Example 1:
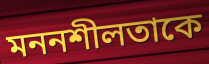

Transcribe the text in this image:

মননশীলতাকে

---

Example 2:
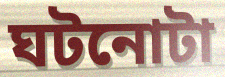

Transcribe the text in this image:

ঘটনোটা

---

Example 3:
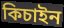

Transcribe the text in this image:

কিচাইন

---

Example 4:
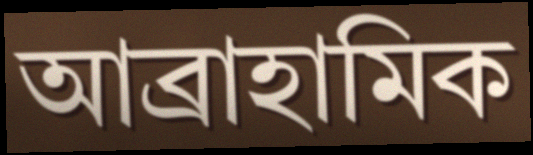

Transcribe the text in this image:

আব্রাহামিক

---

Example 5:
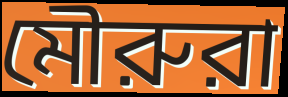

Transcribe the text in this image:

মৌরুরা